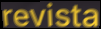
revista